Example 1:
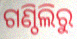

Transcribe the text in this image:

ଗଣ୍ଠିଲିରୁ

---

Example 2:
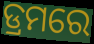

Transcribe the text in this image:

ଡ୍ରମରେ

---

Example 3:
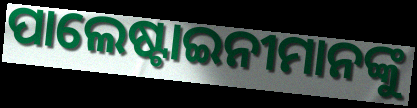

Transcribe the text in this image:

ପାଲେଷ୍ଟାଇନୀମାନଙ୍କୁ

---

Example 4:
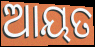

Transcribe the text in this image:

ଆୟତ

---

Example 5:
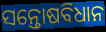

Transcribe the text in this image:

ସନ୍ତୋଷବିଧାନ